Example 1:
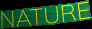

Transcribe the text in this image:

NATURE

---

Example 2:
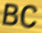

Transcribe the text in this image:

BC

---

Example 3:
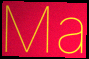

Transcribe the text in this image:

Ma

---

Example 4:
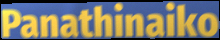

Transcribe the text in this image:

Panathinaiko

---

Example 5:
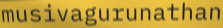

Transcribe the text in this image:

musivagurunathan